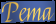
Pema